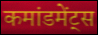
कमांडमेंट्स